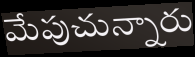
మేపుచున్నారు